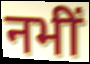
नभीं